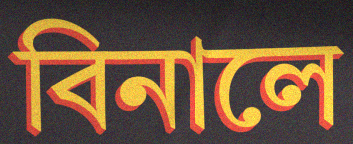
বিনালে